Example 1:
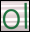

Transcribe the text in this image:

ol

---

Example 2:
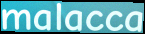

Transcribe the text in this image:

malacca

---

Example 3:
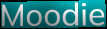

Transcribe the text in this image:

Moodie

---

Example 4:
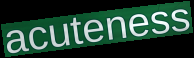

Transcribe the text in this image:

acuteness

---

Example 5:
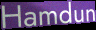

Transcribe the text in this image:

Hamdun